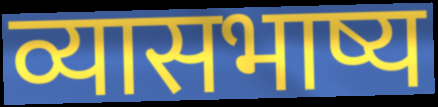
व्यासभाष्य